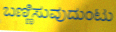
ಬಣ್ಣಿಸುವುದುಂಟು